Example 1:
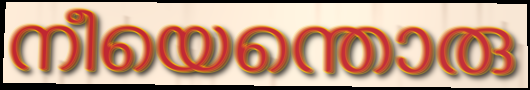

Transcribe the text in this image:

നീയെന്തൊരു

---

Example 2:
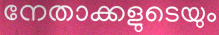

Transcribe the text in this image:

നേതാക്കളുടെയും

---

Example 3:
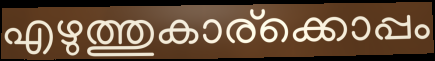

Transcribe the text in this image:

എഴുത്തുകാര്ക്കൊപ്പം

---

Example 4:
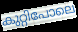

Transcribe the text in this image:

കുറ്റിപോലെ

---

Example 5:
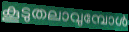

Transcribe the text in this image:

കൂടുതലാവുമ്പോൾ